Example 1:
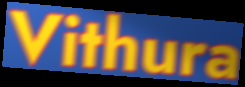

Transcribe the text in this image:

Vithura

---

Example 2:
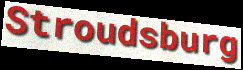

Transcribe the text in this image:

Stroudsburg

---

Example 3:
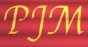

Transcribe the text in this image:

PJM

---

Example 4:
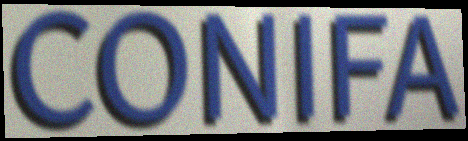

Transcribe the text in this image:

CONIFA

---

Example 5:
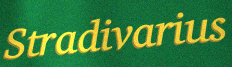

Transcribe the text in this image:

Stradivarius